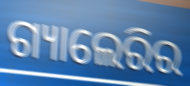
ଗ୍ୟାଲେରିର